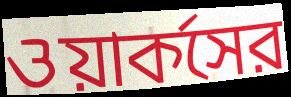
ওয়ার্কসের